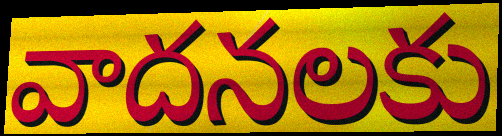
వాదనలకు